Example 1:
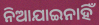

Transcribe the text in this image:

ନିଆଯାଇନାହିଁ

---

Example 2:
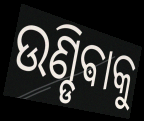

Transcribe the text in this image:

ଉଣ୍ଡିଵାକୁ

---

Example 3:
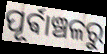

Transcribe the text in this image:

ପୂର୍ଵାଞ୍ଚଳରୁ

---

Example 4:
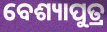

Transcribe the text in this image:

ବେଶ୍ୟାପୁତ୍ର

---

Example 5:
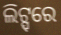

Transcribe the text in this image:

ଲିଟ୍ସ୍‌ରେ